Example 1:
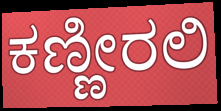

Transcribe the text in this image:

ಕಣ್ಣೀರಲಿ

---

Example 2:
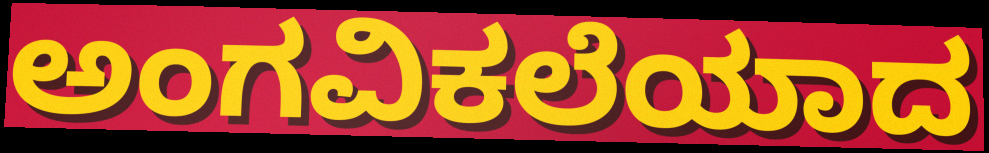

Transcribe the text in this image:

ಅಂಗವಿಕಲೆಯಾದ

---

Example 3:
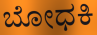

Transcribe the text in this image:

ಬೋಧಕಿ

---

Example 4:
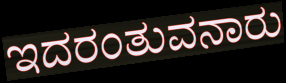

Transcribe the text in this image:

ಇದರಂತುವನಾರು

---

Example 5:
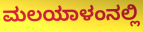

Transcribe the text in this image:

ಮಲಯಾಳಂನಲ್ಲಿ